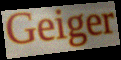
Geiger